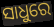
ସାଧୁରେ